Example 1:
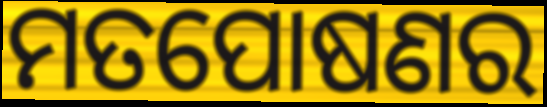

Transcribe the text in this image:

ମତପୋଷଣର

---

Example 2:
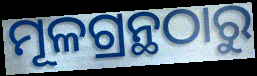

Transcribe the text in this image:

ମୂଳଗ୍ରନ୍ଥଠାରୁ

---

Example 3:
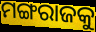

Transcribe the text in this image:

ମଙ୍ଗରାଜକୁ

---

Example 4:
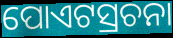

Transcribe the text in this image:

ପୋଏଟସ୍ରଚନା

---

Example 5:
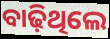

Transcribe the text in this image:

ବାଢ଼ିଥିଲେ